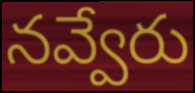
నవ్వేరు